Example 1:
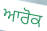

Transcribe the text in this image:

ਆਰੋਕ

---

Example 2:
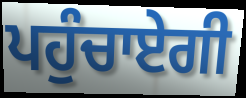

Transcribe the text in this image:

ਪਹੁੰਚਾਏਗੀ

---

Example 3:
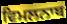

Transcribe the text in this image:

ਵਿਮਲਨਾਥ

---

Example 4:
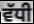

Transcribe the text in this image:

ਵੱਧੀ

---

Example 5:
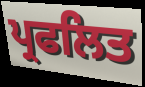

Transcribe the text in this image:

ਪ੍ਰਫਲਿਤ